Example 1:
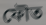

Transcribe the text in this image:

ফৌত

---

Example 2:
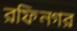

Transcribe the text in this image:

রফিনগর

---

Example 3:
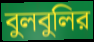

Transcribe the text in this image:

বুলবুলির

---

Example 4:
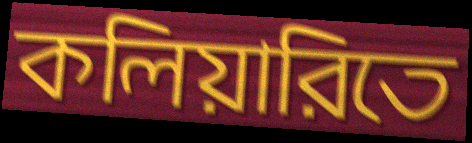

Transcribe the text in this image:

কলিয়ারিতে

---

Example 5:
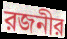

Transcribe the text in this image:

রজনীর